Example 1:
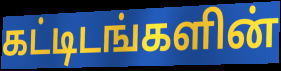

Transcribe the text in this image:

கட்டிடங்களின்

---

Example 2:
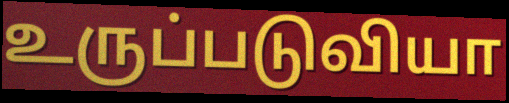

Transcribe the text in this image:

உருப்படுவியா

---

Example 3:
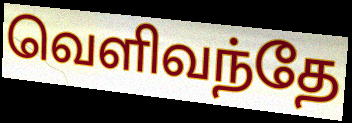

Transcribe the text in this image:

வெளிவந்தே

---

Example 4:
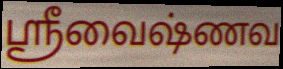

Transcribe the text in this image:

ஸ்ரீவைஷ்ணவ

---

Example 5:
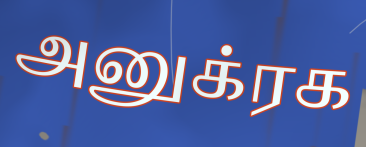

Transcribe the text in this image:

அனுக்ரக